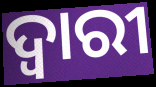
ଦ୍ଵାରୀ